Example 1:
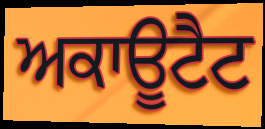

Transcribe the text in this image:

ਅਕਾਊਟੈਟ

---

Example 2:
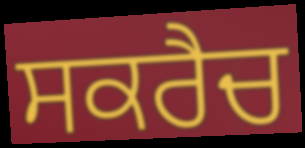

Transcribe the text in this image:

ਸਕਰੈਚ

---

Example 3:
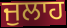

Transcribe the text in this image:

ਜੁਲਾਹ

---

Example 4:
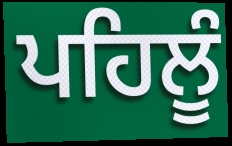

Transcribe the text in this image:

ਪਹਿਲੂੰ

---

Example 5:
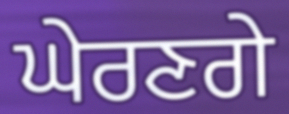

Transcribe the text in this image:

ਘੇਰਣਗੇ